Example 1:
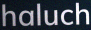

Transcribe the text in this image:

haluch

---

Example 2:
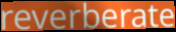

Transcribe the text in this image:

reverberate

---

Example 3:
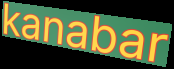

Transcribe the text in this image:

kanabar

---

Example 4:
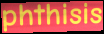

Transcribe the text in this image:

phthisis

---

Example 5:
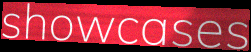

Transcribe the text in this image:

showcases